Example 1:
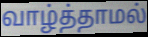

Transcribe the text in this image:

வாழ்த்தாமல்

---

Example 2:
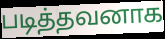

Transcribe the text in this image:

படித்தவனாக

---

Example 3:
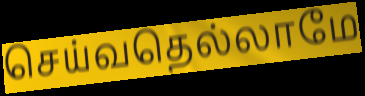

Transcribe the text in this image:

செய்வதெல்லாமே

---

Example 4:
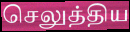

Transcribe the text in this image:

செலுத்திய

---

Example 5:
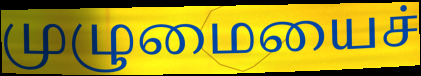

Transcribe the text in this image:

முழுமையைச்